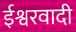
ईश्वरवादी